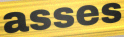
asses